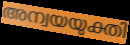
അന്വയയുക്തി